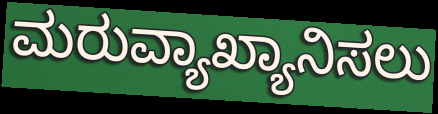
ಮರುವ್ಯಾಖ್ಯಾನಿಸಲು